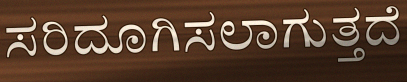
ಸರಿದೂಗಿಸಲಾಗುತ್ತದೆ